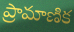
ప్రామాణిక